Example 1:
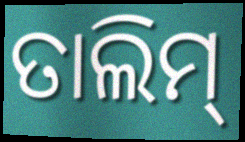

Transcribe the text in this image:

ତାଲିମ୍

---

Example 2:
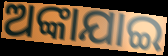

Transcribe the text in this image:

ଅଙ୍କାଯାଇ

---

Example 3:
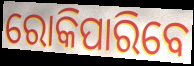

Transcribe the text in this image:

ରୋକିପାରିବେ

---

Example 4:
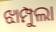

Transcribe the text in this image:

ଝାମ୍ପୁଲା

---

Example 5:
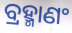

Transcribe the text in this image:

ବ୍ରହ୍ମାଣଂ